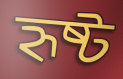
হৃষ্ট